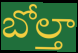
బోల్తా